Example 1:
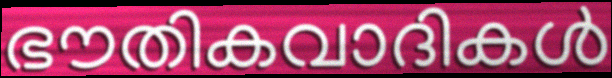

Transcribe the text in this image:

ഭൗതികവാദികൾ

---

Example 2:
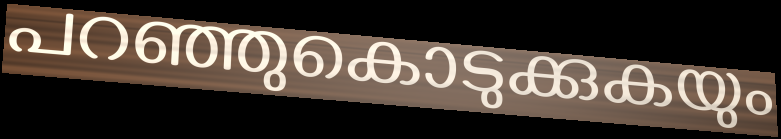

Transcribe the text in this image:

പറഞ്ഞുകൊടുക്കുകയും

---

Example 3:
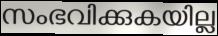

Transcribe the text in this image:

സംഭവിക്കുകയില്ല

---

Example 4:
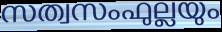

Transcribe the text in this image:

സത്വസംഫുല്ലയും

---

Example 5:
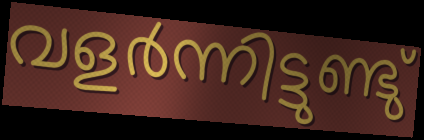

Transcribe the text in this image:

വളർന്നിട്ടുണ്ടു്